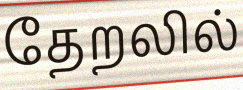
தேறலில்